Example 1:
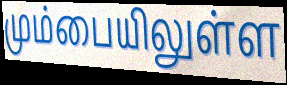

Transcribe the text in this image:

மும்பையிலுள்ள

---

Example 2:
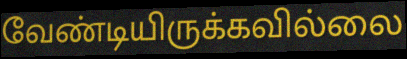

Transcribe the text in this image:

வேண்டியிருக்கவில்லை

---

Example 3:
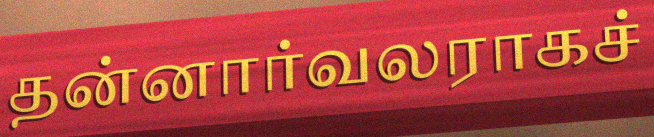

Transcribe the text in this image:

தன்னார்வலராகச்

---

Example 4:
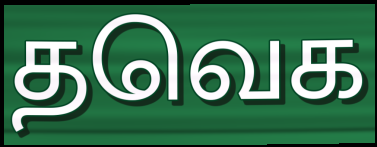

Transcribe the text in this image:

தவெக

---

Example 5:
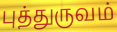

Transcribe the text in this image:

புத்துருவம்